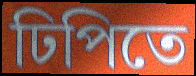
ঢিপিতে